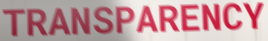
TRANSPARENCY